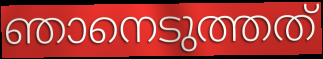
ഞാനെടുത്തത്